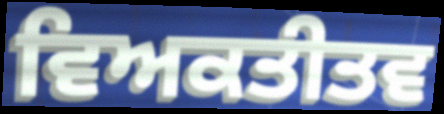
ਵਿਅਕਤੀਤਵ